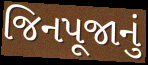
જિનપૂજાનું